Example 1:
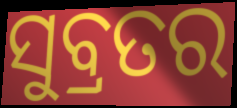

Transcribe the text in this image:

ସୁବ୍ରତର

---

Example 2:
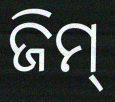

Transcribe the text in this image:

ଜିମ୍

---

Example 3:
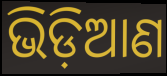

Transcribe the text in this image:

ଭିଡ଼ିଆଣ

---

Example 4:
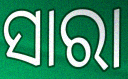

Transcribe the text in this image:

ସାରା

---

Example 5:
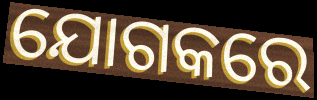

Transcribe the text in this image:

ଯୋଗକରେ